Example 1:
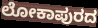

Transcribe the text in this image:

ಲೋಕಾಪುರದ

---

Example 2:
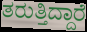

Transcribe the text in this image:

ತರುತ್ತಿದ್ದಾರೆ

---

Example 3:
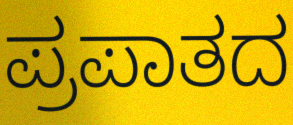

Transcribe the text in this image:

ಪ್ರಪಾತದ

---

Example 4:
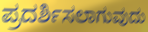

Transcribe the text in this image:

ಪ್ರದರ್ಶಿಸಲಾಗುವುದು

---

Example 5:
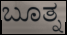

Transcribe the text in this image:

ಬೂತ್ನ